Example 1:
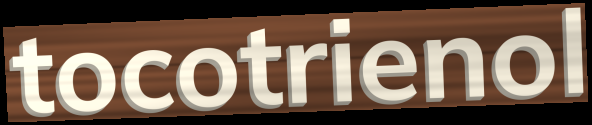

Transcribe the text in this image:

tocotrienol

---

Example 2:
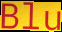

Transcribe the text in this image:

Blu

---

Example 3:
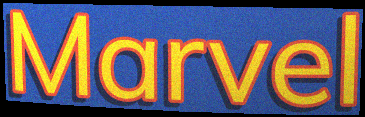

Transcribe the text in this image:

Marvel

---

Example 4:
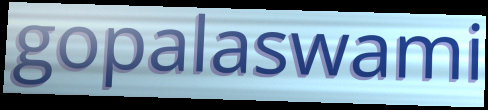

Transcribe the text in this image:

gopalaswami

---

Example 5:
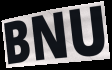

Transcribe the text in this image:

BNU